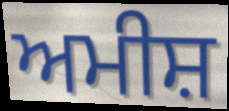
ਅਮੀਸ਼